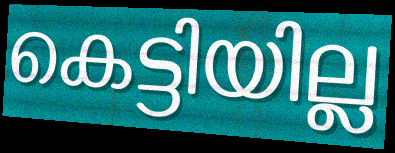
കെട്ടിയില്ല